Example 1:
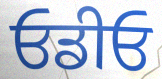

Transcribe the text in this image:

ਓਡੀਓ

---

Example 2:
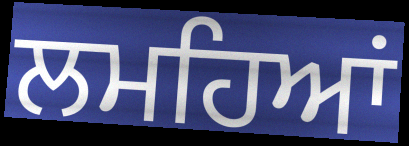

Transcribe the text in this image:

ਲਮਹਿਆਂ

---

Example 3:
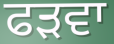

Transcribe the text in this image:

ਫੜਵਾ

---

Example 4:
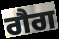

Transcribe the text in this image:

ਗੈਗ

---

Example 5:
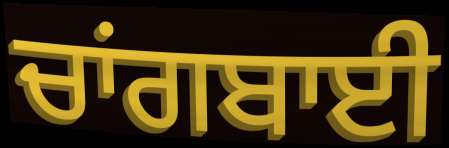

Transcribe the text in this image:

ਚਾਂਗਬਾਈ